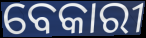
ବେକାରୀ